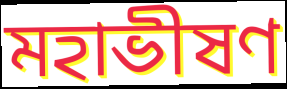
মহাভীষণ